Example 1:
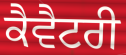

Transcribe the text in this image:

ਕੈਵੈਟਰੀ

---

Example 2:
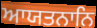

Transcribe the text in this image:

ਆਯਤਨਾਨਿ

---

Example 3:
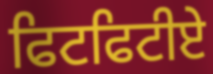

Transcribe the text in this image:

ਫਿਟਫਿਟੀਏ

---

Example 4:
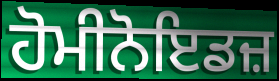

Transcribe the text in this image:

ਹੋਮੀਨੋਇਡਜ਼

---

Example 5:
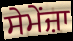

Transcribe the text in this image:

ਸੇਮੇਂਜ਼ਾ